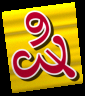
ಷಿ